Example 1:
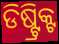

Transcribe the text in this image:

ଡିଷ୍ଟ୍ରିକ୍ଟ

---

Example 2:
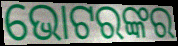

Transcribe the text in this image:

ଭୋଟରଙ୍କର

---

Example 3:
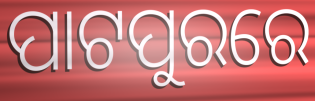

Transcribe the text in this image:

ପାଟପୁରରେ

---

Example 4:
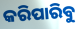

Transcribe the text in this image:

କରିପାରିବୁ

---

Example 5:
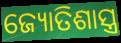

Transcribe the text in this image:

ଜ୍ୟୋତିଶାସ୍ତ୍ର